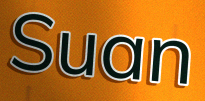
Suan